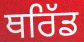
ਥਰਿੱਡ